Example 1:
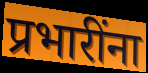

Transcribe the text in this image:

प्रभारींना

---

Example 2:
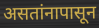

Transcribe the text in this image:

असतांनापासून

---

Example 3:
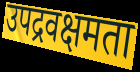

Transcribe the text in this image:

उपद्रवक्षमता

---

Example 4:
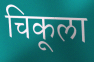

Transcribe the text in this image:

चिकूला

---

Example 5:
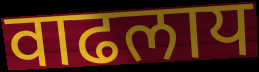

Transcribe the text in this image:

वाढलाय